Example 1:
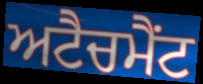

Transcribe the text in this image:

ਅਟੈਚਮੈਂਟ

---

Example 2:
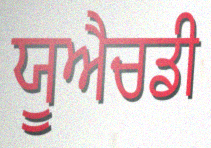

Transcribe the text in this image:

ਯੂਐਚਡੀ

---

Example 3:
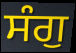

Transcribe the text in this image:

ਸੰਗੁ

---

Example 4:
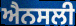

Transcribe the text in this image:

ਐਨਸਲੀ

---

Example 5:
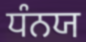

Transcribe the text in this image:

ਧੰਨਯ